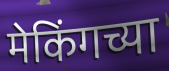
मेकिंगच्या